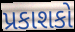
પ્રકાશકો